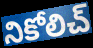
నికోలిచ్